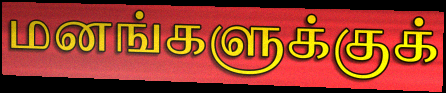
மனங்களுக்குக்